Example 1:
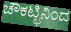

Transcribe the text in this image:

ಚೌಕಟ್ಟಿನಿಂದ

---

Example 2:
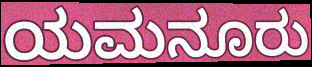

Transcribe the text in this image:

ಯಮನೂರು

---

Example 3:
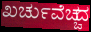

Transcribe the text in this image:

ಖರ್ಚುವೆಚ್ಚದ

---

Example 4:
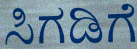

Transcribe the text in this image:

ಸಿಗಡಿಗೆ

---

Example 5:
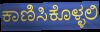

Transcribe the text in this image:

ಕಾಣಿಸಿಕೊಳ್ಳಲಿ